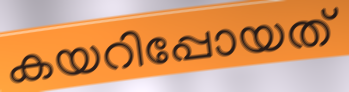
കയറിപ്പോയത്